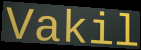
Vakil